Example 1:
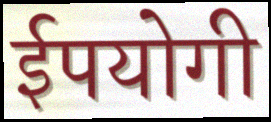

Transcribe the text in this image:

ईपयोगी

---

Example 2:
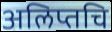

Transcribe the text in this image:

अलिप्तचि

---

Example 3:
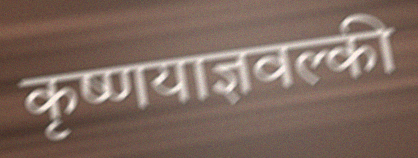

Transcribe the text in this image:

कृष्णयाज्ञवल्की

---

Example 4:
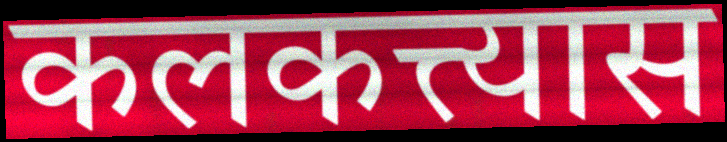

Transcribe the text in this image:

कलकत्त्यास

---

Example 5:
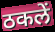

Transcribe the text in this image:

ठकलें